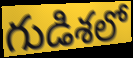
గుడిశలో